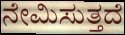
ನೇಮಿಸುತ್ತದೆ